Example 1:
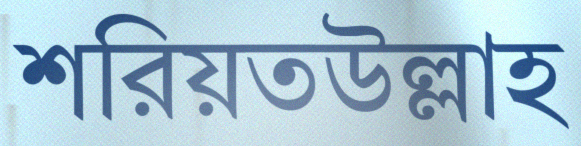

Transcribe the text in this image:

শরিয়তউল্লাহ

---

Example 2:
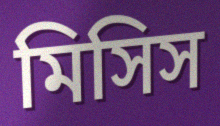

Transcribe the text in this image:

মিসিস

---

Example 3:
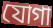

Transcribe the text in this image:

যোগা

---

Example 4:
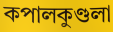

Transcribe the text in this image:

কপালকুণ্ডলা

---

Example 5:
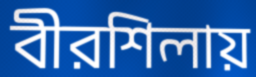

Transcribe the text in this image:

বীরশিলায়